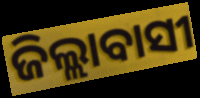
ଜିଲ୍ଲାବାସୀ